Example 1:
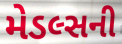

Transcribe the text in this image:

મેડલ્સની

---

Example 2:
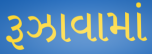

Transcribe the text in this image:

રૂઝાવામાં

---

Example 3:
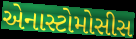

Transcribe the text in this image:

એનાસ્ટોમોસીસ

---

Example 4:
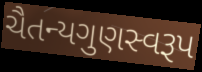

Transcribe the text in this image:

ચૈતન્યગુણસ્વરૂપ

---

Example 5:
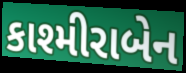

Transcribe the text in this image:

કાશ્મીરાબેન